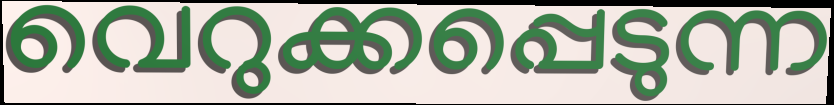
വെറുക്കപ്പെടുന്ന